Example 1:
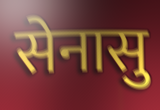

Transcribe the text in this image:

सेनासु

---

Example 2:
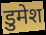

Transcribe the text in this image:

डुमेश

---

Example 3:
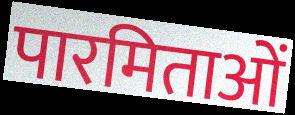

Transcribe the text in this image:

पारमिताओं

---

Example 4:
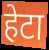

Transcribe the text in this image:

हेटा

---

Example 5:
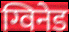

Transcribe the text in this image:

ग्विनेड